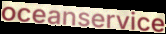
oceanservice